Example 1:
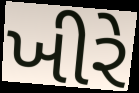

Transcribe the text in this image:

ખીરે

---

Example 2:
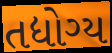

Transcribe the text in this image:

તદ્યોગ્ય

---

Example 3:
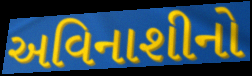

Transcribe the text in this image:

અવિનાશીનો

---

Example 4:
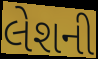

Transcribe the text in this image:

લેશની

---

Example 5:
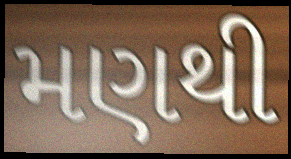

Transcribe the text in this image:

મણથી